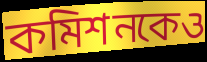
কমিশনকেও